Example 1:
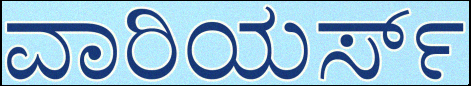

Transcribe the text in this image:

ವಾರಿಯರ್ಸ್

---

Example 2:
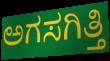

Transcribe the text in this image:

ಅಗಸಗಿತ್ತಿ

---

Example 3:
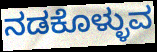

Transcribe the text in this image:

ನಡಕೊಳ್ಳುವ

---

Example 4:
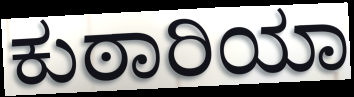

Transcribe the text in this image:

ಕುಠಾರಿಯಾ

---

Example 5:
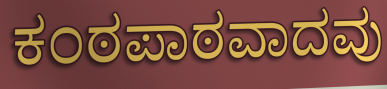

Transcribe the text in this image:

ಕಂಠಪಾಠವಾದವು